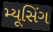
મ્યૂસિંગ